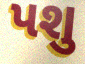
પશુ